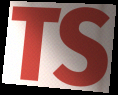
TS